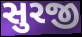
સુરજી